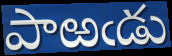
పాఱఁడు